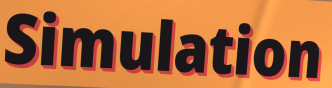
Simulation